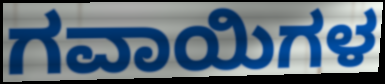
ಗವಾಯಿಗಳ